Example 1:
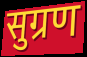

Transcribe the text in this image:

सुग्रण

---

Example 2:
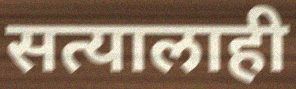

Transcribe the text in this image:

सत्यालाही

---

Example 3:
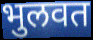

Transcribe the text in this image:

भुलवत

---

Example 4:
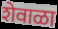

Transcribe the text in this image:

शेवाळा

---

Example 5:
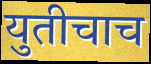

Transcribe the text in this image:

युतीचाच